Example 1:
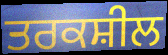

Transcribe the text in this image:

ਤਰਕਸ਼ੀਲ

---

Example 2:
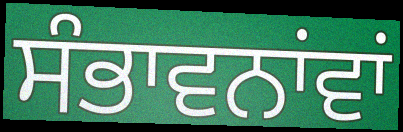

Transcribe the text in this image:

ਸੰਭਾਵਨਾਂਵਾਂ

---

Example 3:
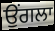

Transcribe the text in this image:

ਉਂਗਲਾ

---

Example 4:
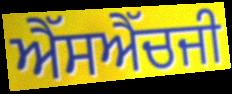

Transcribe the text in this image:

ਐੱਸਐੱਚਜੀ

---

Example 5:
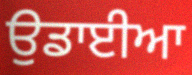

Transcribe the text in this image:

ਉਡਾਈਆ